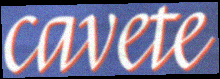
cavete